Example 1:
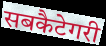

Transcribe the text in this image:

सबकैटेगरी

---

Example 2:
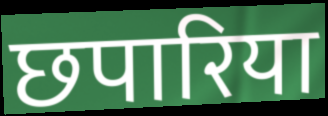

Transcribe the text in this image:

छपारिया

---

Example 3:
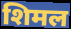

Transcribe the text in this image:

शिमल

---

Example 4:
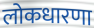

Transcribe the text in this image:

लोकधारणा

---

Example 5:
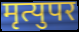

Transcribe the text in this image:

मृत्युपर